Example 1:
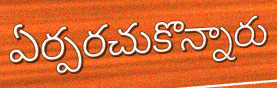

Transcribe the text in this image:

ఏర్పరచుకొన్నారు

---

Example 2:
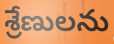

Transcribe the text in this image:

శ్రేణులను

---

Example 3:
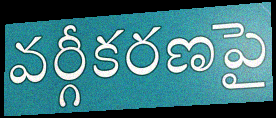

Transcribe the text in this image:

వర్గీకరణపై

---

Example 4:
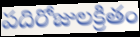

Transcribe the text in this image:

పదిరోజులక్రితం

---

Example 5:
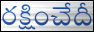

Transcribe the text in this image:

రక్షించేదీ